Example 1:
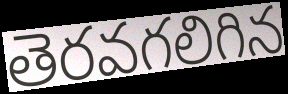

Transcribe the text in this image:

తెరవగలిగిన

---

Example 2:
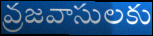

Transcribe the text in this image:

వ్రజవాసులకు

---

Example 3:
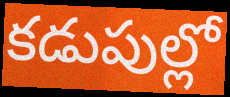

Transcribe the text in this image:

కడుపుల్లో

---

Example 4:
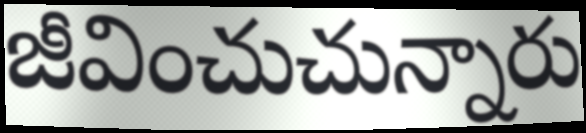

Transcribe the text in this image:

జీవించుచున్నారు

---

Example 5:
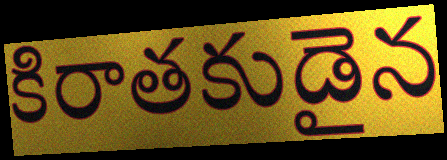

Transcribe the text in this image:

కిరాతకుడైన